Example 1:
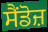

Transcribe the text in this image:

ਸੈਂਡੋਜ਼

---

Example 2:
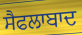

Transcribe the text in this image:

ਸੈਫਲਾਬਾਦ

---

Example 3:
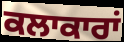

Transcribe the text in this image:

ਕਲਾਕਾਰਾਂ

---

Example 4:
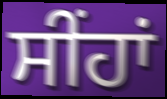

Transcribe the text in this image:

ਸੀਂਹਾਂ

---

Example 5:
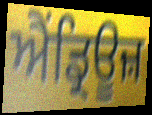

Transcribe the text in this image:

ਐਂਡ੍ਰਿਊਜ਼